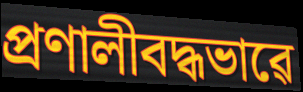
প্ৰণালীবদ্ধভাৱে